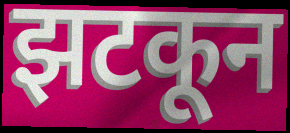
झटकून